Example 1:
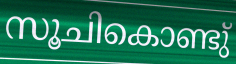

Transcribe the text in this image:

സൂചികൊണ്ടു്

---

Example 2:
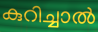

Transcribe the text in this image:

കുറിച്ചാൽ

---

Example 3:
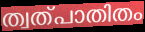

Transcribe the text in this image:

ത്വത്പാതിതം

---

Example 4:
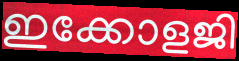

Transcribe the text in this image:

ഇക്കോളജി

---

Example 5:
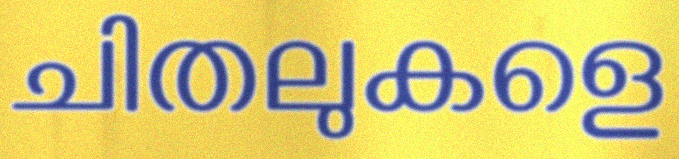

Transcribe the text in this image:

ചിതലുകളെ